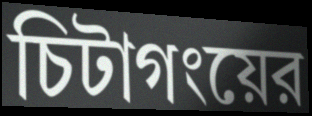
চিটাগংয়ের